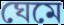
ঘেমে